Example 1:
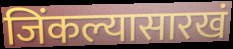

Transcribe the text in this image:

जिंकल्यासारखं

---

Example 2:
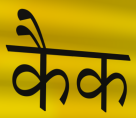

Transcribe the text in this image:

कैक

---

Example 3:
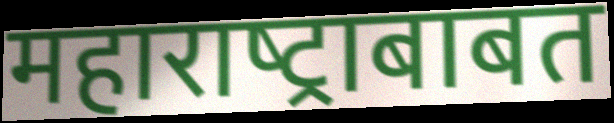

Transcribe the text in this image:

महाराष्ट्राबाबत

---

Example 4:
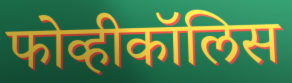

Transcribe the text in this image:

फोव्हीकॉलिस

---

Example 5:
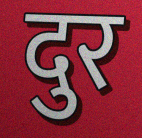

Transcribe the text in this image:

दुर